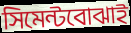
সিমেন্টবোঝাই